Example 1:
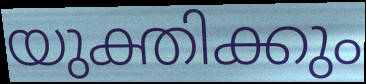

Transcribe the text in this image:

യുക്തിക്കും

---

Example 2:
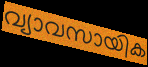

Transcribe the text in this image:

വ്യാവസായിക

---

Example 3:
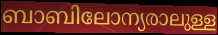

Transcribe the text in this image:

ബാബിലോന്യരാലുള്ള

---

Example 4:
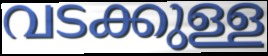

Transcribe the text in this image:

വടക്കുള്ള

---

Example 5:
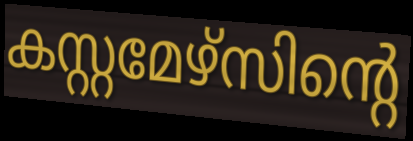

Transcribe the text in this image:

കസ്റ്റമേഴ്സിന്റെ